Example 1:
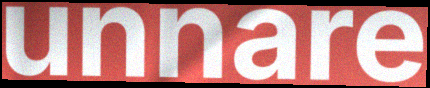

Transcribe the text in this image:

unnare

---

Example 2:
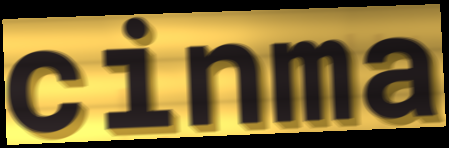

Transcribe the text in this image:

cinma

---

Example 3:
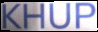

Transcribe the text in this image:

KHUP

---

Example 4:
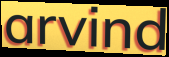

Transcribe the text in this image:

arvind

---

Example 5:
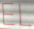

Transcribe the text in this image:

EL